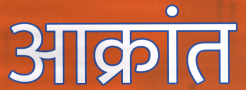
आक्रांत